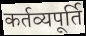
कर्तव्यपूर्ति